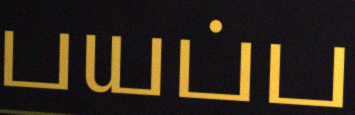
பயப்ப